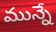
మున్నే